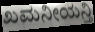
ಖಮನೀಯನ್ತಿ